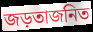
জড়তাজনিত